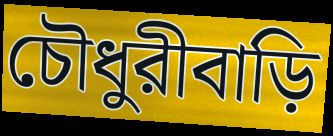
চৌধুরীবাড়ি